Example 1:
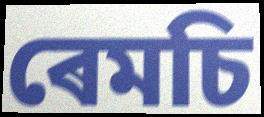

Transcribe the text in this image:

ৰেমচি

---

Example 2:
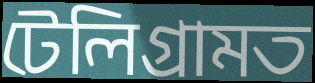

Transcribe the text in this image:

টেলিগ্ৰামত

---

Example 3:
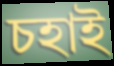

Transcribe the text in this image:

চহাই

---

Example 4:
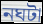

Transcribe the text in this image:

নঘটা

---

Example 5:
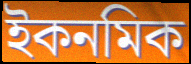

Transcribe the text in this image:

ইকনমিক